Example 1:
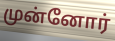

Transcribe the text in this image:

முன்னோர்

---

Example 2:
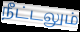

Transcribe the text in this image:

நீட்டலும்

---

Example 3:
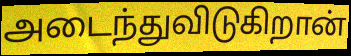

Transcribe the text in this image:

அடைந்துவிடுகிறான்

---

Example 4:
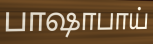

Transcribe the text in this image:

பாஷாபாய்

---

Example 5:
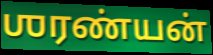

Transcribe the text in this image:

ஶரண்யன்